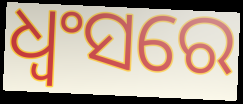
ଧ୍ୱଂସରେ